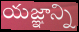
యజ్ఞాన్ని